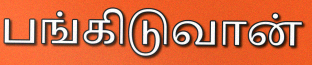
பங்கிடுவான்